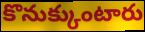
కొనుక్కుంటారు